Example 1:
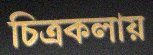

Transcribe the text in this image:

চিত্রকলায়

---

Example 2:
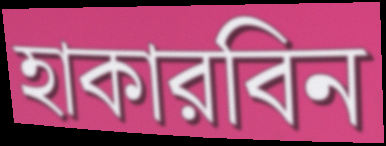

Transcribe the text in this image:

হাকারবিন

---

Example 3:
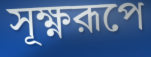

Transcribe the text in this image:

সূক্ষ্ণরূপে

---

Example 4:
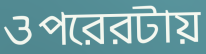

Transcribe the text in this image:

ওপরেরটায়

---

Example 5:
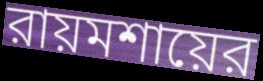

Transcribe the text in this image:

রায়মশায়ের